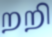
றறி